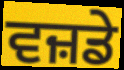
ਵਜ਼ਡੇ